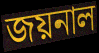
জয়নাল